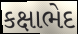
કક્ષાભેદ